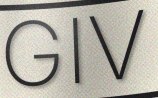
GIV